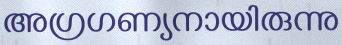
അഗ്രഗണ്യനായിരുന്നു